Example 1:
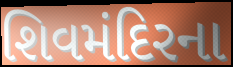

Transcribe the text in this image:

શિવમંદિરના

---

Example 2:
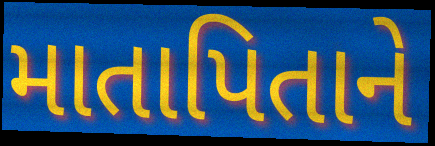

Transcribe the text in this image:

માતાપિતાને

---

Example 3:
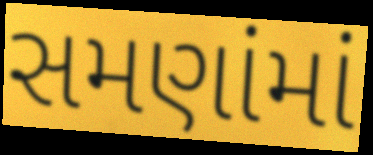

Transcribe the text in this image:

સમણાંમાં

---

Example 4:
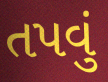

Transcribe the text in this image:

તપવું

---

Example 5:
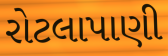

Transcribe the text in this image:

રોટલાપાણી